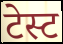
टेस्ट